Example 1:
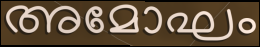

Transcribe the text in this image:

അമോഘം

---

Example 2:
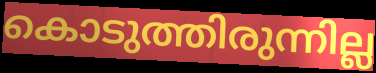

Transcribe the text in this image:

കൊടുത്തിരുന്നില്ല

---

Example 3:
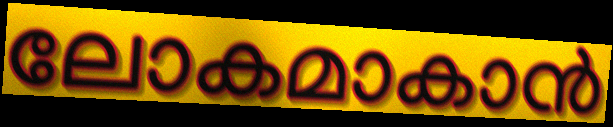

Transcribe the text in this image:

ലോകമാകാൻ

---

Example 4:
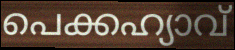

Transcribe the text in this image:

പെക്കഹ്യാവ്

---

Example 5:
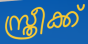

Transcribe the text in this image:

സ്ത്രീക്ക്